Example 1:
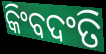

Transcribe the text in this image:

କିଂବଦଂତି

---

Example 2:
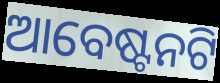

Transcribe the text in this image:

ଆବେଷ୍ଟନଟି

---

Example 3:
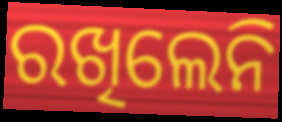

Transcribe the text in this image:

ରଖିଲେନି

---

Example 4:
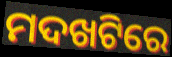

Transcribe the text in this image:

ମଦଖଟିରେ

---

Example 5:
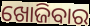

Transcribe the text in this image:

ଖୋଜିବାର